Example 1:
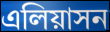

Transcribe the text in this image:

এলিয়াসন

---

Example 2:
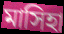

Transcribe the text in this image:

মাসিহা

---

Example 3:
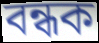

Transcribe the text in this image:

বন্ধক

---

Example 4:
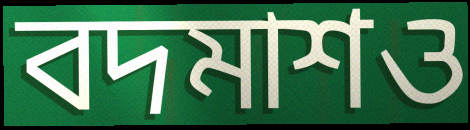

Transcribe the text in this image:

বদমাশও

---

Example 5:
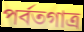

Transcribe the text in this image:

পর্বতগাত্র